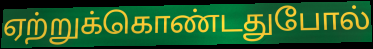
ஏற்றுக்கொண்டதுபோல்